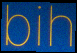
bih